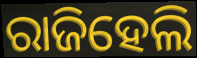
ରାଜିହେଲି